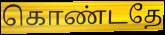
கொண்டதே